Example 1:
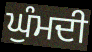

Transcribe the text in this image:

ਘੁੰਮਦੀ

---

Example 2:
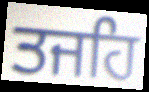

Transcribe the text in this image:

ਤਜਹਿ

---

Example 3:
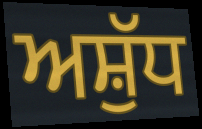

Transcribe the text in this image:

ਅਸ਼ੁੱਧ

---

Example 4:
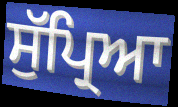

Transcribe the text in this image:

ਸੁੱਪ੍ਰਿਆ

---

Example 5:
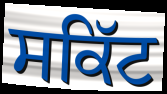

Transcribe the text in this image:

ਸਕਿੱਟ